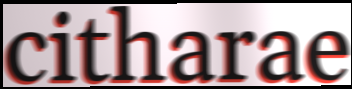
citharae